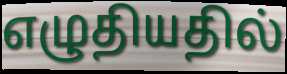
எழுதியதில்